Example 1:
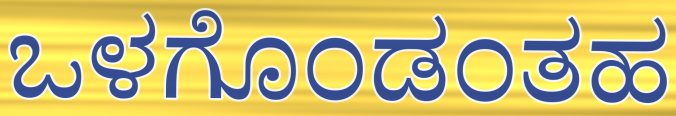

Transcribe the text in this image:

ಒಳಗೊಂಡಂತಹ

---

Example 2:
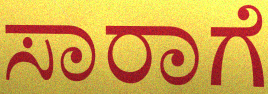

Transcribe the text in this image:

ಸಾರಾಗೆ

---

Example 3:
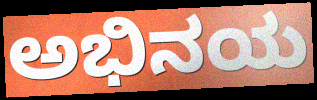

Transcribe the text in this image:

ಅಭಿನಯ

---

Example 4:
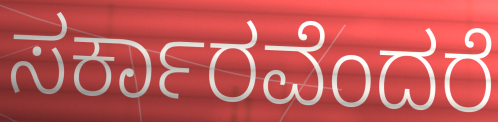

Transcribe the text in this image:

ಸರ್ಕಾರವೆಂದರೆ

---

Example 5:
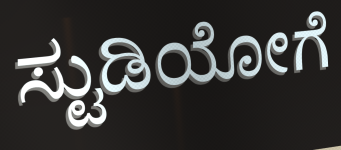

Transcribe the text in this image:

ಸ್ಟುಡಿಯೋಗೆ